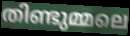
തിണ്ടുമ്മലെ